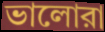
ভালোরা